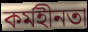
কৰ্মহীনতা